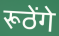
रूठेंगे